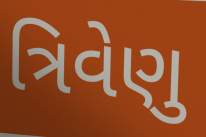
ત્રિવેણુ